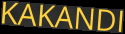
KAKANDI